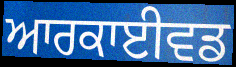
ਆਰਕਾਈਵਡ